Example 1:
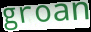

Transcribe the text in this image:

groan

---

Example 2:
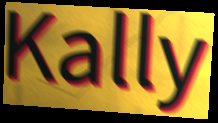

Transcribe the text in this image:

Kally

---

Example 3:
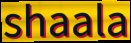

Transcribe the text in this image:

shaala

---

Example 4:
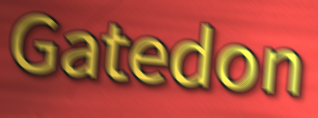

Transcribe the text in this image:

Gatedon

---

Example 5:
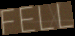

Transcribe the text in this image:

FELL